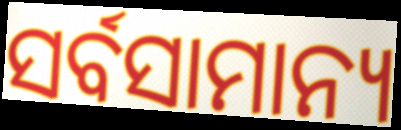
ସର୍ବସାମାନ୍ୟ